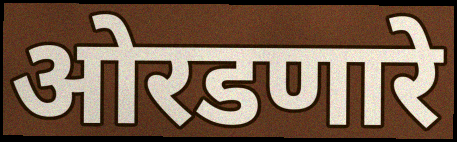
ओरडणारे